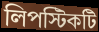
লিপস্টিকটি